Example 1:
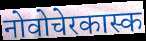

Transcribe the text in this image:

नोवोचेरकास्क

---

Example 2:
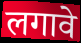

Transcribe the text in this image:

लगावे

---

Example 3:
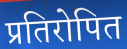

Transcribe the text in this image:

प्रतिरोपित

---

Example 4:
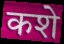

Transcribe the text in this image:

कशे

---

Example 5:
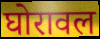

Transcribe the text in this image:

घोरावल